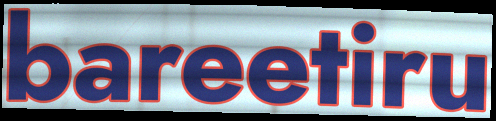
bareetiru